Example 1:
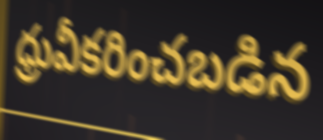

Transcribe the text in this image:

ధ్రువీకరించబడిన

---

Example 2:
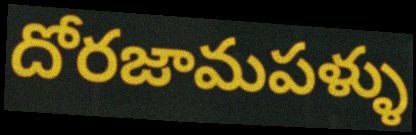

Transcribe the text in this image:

దోరజామపళ్ళు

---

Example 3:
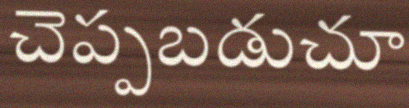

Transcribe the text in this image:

చెప్పబడుచూ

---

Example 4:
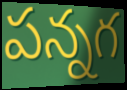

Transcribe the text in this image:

పన్నగ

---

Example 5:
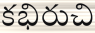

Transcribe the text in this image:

కభిరుచి